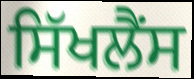
ਸਿੱਖਲੈਂਸ